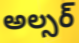
అల్సర్